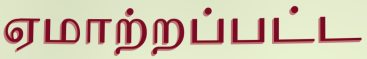
ஏமாற்றப்பட்ட